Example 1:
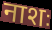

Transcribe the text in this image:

नाशः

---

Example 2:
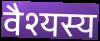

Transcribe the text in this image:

वैश्यस्य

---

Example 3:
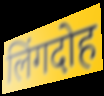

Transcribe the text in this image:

लिंगदोह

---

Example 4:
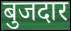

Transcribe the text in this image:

बुजदार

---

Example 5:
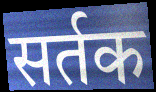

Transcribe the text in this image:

सर्तक